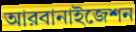
আরবানাইজেশন